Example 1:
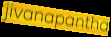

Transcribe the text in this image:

jivanapantha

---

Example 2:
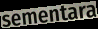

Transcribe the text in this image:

sementara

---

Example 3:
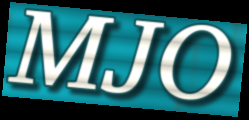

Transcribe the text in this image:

MJO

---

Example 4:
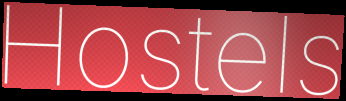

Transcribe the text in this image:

Hostels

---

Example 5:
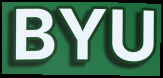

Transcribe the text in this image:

BYU